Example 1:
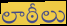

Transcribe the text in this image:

లాఠీలు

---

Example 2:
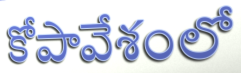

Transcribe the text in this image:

కోపావేశంలో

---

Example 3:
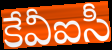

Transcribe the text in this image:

కేవీఐసీ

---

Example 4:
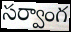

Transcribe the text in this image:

సర్వాంగ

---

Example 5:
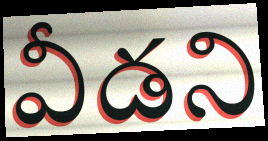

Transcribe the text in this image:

వీడని